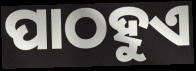
ପାଠହୁଏ